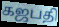
கஜபதி